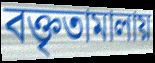
বক্তৃতামালায়